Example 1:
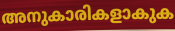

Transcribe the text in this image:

അനുകാരികളാകുക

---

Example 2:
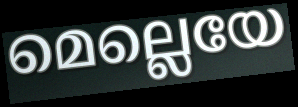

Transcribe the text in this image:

മെല്ലെയേ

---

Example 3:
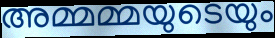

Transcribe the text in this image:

അമ്മമ്മയുടെയും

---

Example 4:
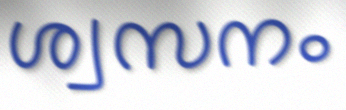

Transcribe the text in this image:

ശ്വസനം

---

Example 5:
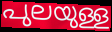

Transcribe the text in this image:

പുലയുള്ള